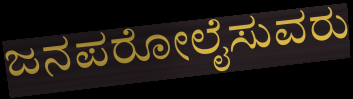
ಜನಪರೋಲೈಸುವರು